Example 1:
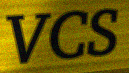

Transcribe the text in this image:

VCS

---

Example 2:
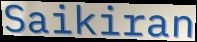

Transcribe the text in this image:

Saikiran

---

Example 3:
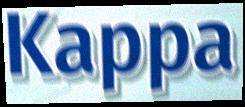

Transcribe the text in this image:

Kappa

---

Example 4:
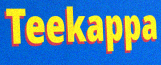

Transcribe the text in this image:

Teekappa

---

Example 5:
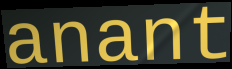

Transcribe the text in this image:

anant